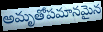
అమృతోపమానమైన